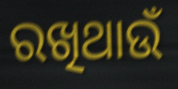
ରଖିଥାଉଁ